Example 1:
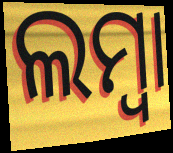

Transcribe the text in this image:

ଲମ୍ବା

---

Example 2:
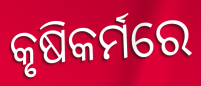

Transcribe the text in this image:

କୃଷିକର୍ମରେ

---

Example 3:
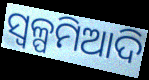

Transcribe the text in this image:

ସ୍ବଳ୍ପମିଆଦି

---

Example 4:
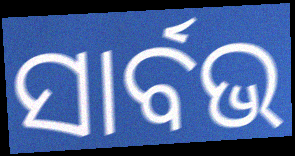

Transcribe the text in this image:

ସାର୍ବଭ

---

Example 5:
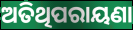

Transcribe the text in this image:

ଅତିଥିପରାୟଣା